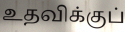
உதவிக்குப்